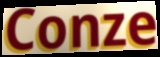
Conze